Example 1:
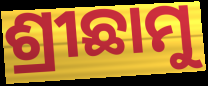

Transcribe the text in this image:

ଶ୍ରୀଛାମୁ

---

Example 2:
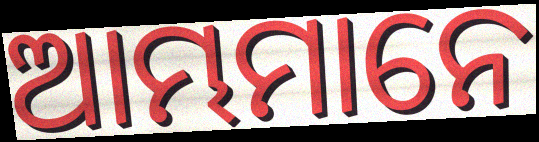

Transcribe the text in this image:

ଆମ୍ଭମାନେ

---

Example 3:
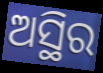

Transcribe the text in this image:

ଅସ୍ଥିର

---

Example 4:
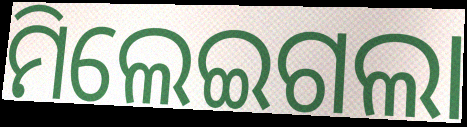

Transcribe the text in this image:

ମିଲେଇଗଲା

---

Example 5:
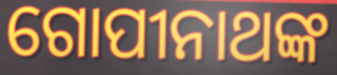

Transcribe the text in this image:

ଗୋପୀନାଥଙ୍କ